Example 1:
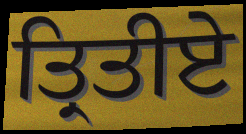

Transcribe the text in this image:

ਤ੍ਰਿਤੀਏ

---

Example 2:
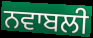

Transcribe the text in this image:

ਨਵਾਬਲੀ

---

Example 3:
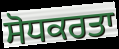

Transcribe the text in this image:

ਸੋਧਕਰਤਾ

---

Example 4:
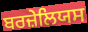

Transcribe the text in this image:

ਬਰਜ਼ੇਲਿਯਸ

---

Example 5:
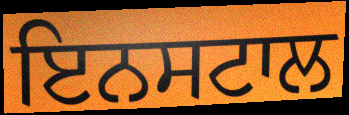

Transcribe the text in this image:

ਇਨਸਟਾਲ